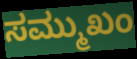
ಸಮ್ಮುಖಂ